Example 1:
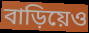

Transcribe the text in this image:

বাড়িয়েও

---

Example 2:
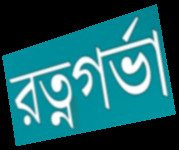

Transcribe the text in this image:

রত্নগর্ভা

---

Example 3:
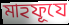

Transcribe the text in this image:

মাহফূযে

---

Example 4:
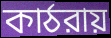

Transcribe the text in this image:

কাঠরায়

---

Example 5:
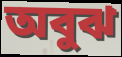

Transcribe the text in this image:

অবুঝ